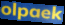
olpaek